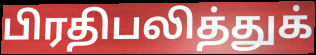
பிரதிபலித்துக்